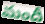
మందీ